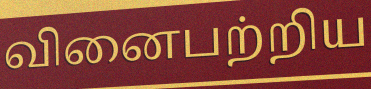
வினைபற்றிய